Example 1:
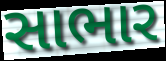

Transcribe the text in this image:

સાભાર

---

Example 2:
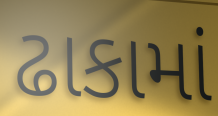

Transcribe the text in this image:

ઢાકામાં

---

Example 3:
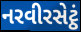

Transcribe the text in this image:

નરવીરસેટ્ઠં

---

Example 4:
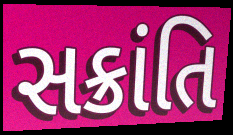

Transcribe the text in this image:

સક્રાંતિ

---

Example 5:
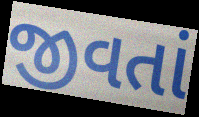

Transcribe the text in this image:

જીવતાં